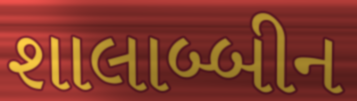
શાલાબ્બીન